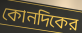
কোনদিকের